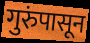
गुरुंपासून